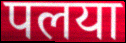
पलया